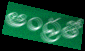
ఆంధ్రతో